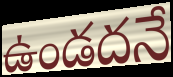
ఉండదనే